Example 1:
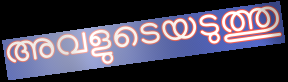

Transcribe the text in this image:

അവളുടെയടുത്തു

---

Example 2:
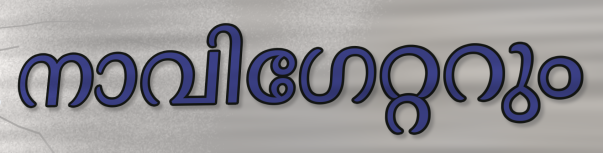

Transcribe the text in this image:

നാവിഗേറ്ററും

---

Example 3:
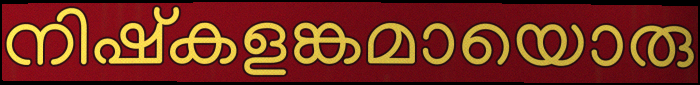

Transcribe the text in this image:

നിഷ്കളങ്കമായൊരു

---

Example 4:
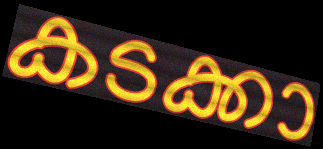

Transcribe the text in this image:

കടക്കാ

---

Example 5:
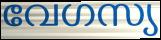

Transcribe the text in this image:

വേഗസ്യ